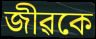
জীৱকে